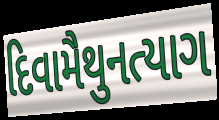
દિવામૈથુનત્યાગ